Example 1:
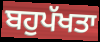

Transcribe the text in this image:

ਬਹੁਪੱਖਤਾ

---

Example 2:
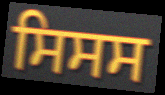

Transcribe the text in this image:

ਸਿਸਸ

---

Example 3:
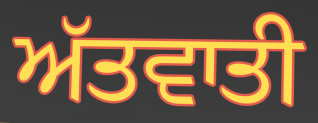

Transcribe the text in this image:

ਅੱਤਵਾਤੀ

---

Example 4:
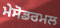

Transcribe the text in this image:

ਮੇਸੋਡਰਮਲ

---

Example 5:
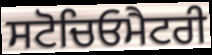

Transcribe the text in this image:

ਸਟੋਚਿਓਮੈਟਰੀ